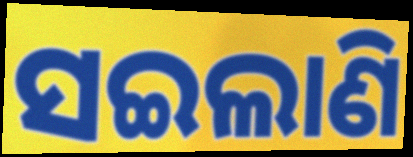
ସଇଲାଣି